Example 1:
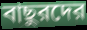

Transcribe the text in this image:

বাছুরদের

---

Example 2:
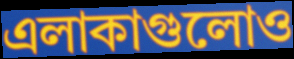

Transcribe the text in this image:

এলাকাগুলোও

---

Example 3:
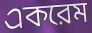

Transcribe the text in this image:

একরেম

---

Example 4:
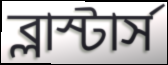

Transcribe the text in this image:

ব্লাস্টার্স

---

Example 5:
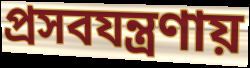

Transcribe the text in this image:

প্রসবযন্ত্রণায়